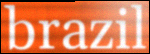
brazil